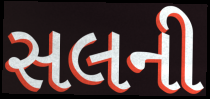
સલની